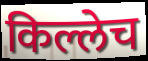
किल्लेच